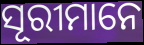
ସୂରୀମାନେ